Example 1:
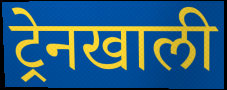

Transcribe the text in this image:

ट्रेनखाली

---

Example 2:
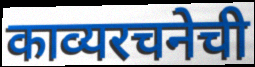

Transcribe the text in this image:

काव्यरचनेची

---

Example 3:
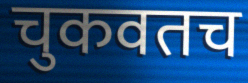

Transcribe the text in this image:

चुकवतच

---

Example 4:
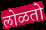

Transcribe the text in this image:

लोळतो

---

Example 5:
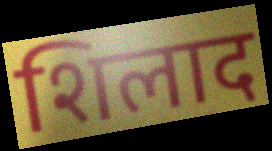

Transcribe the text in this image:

शिलाद